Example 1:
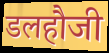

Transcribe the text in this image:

डलहौजी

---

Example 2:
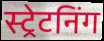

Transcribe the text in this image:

स्ट्रेटनिंग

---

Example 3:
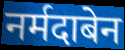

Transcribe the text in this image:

नर्मदाबेन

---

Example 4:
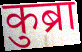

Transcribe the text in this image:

कुब्रा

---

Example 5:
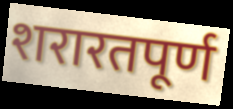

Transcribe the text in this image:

शरारतपूर्ण